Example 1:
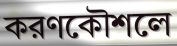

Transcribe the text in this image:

করণকৌশলে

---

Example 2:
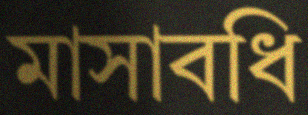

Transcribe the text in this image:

মাসাবধি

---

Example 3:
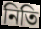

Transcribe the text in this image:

নিতি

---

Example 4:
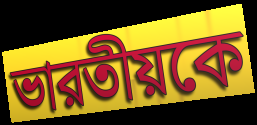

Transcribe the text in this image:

ভারতীয়কে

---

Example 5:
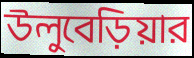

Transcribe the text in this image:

উলুবেড়িয়ার